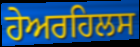
ਹੇਅਰਹਿਲਸ